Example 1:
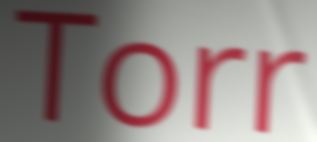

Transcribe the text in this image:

Torr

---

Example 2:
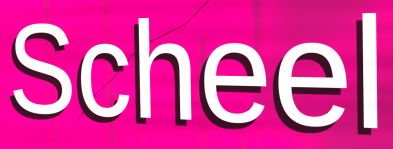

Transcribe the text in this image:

Scheel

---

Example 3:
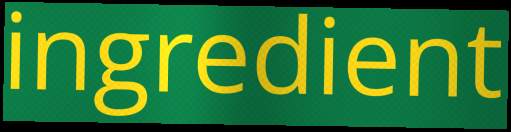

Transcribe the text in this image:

ingredient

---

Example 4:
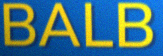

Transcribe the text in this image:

BALB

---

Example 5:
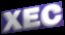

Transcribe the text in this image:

XEC